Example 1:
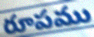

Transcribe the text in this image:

రూపము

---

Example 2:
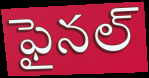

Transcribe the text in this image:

ఫైనల్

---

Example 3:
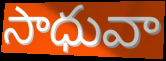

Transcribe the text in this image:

సాధువా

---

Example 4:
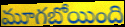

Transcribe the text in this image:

మూగబోయింది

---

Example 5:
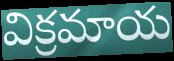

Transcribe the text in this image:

విక్రమాయ